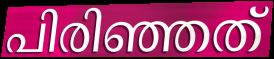
പിരിഞ്ഞത്